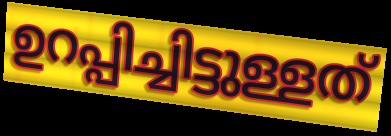
ഉറപ്പിച്ചിട്ടുള്ളത്